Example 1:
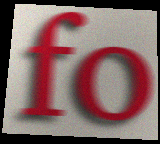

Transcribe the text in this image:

fo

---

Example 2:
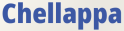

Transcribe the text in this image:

Chellappa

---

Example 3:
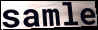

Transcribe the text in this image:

samle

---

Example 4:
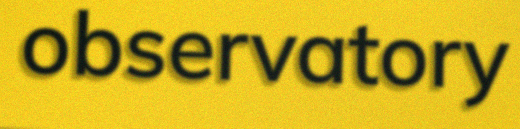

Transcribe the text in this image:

observatory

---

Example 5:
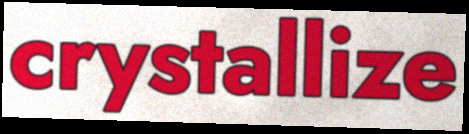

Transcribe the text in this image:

crystallize